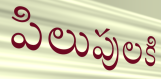
పిలుపులకి